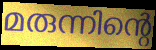
മരുന്നിന്റെ